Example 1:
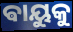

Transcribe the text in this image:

ଵାୟୁକୁ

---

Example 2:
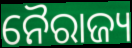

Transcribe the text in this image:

ନୈରାଜ୍ୟ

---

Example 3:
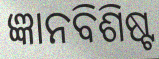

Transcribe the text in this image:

ଜ୍ଞାନବିଶିଷ୍ଟ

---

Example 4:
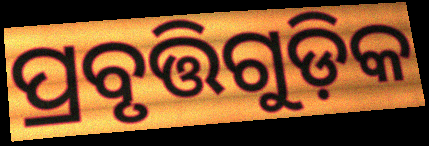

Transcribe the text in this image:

ପ୍ରବୃତ୍ତିଗୁଡ଼ିକ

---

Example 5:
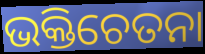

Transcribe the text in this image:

ଭକ୍ତିଚେତନା